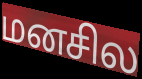
மனசில